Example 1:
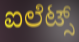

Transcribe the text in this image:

ಐಲೆಟ್ಸ್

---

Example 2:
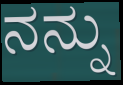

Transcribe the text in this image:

ನನ್ನು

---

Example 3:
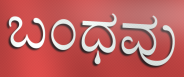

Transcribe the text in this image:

ಬಂಧವು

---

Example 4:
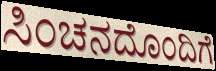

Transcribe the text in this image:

ಸಿಂಚನದೊಂದಿಗೆ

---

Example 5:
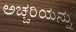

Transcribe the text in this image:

ಅಚ್ಚರಿಯನ್ನು